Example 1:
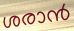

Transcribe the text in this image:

ശരാൻ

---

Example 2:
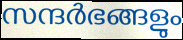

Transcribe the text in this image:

സന്ദർഭങ്ങളും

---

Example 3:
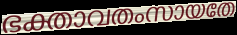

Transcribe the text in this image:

ഭക്താവതംസായതേ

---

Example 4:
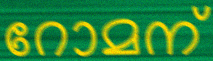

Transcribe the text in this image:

റോമന്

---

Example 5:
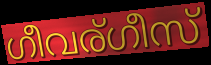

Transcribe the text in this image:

ഗീവര്ഗീസ്